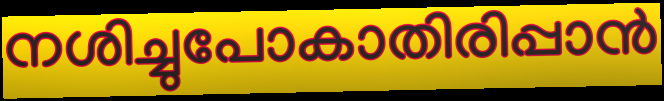
നശിച്ചുപോകാതിരിപ്പാൻ